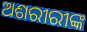
ଅଶରୀରୀଙ୍କ